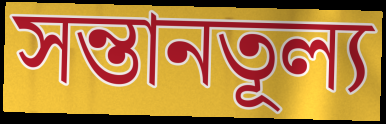
সন্তানতূল্য